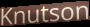
Knutson